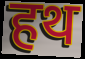
हथ